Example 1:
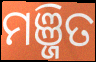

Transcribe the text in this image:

ମଞ୍ଜିତ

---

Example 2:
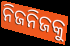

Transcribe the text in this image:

ନିଜନିଜକୁ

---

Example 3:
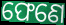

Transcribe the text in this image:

ଫେଣେ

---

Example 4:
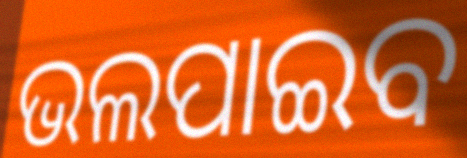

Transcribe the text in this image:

ଭଲପାଇବ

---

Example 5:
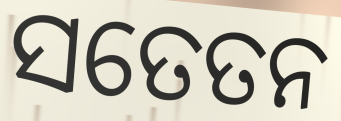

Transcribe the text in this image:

ସତେତନ